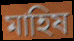
মাহিষ